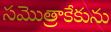
సమొత్రాకేకును